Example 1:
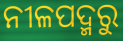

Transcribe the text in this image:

ନୀଳପଦ୍ମରୁ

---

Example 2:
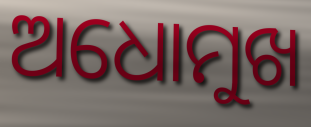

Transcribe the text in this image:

ଅଧୋମୁଖ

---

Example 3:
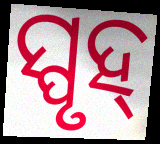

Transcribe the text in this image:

ସ୍ପୃହ୍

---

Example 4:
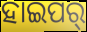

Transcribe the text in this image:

ହାଇପର୍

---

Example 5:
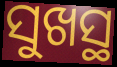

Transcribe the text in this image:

ସୁଖସ୍ଥ